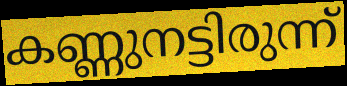
കണ്ണുനട്ടിരുന്ന്